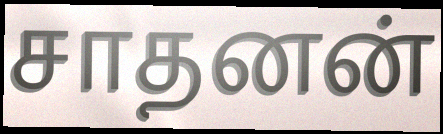
சாதனன்